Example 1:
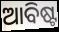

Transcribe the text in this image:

ଆବିଷ୍ଟ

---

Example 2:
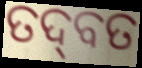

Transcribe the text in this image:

ତଦ୍‌ବତ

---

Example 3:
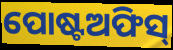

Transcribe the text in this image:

ପୋଷ୍ଟଅଫିସ୍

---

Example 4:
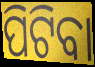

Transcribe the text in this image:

ପିଟିବା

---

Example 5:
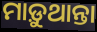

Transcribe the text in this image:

ମାଡ଼ୁଥାନ୍ତା